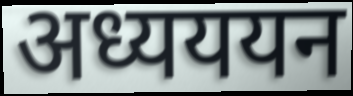
अध्यययन